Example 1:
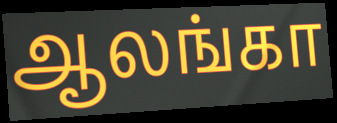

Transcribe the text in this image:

ஆலங்கா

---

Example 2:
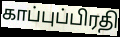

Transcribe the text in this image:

காப்புப்பிரதி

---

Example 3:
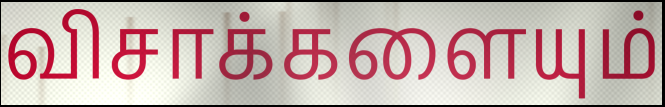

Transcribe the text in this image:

விசாக்களையும்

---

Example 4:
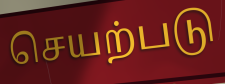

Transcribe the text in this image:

செயற்படு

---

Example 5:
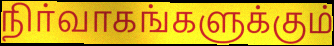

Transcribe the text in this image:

நிர்வாகங்களுக்கும்